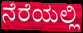
ನೆರೆಯಲ್ಲಿ